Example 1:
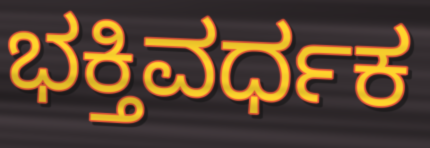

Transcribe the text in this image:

ಭಕ್ತಿವರ್ಧಕ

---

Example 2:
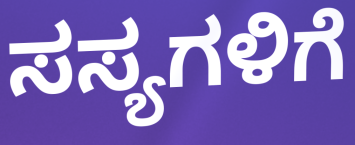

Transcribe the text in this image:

ಸಸ್ಯಗಳಿಗೆ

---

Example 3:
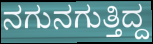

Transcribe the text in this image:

ನಗುನಗುತ್ತಿದ್ದ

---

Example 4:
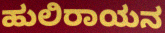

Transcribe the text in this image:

ಹುಲಿರಾಯನ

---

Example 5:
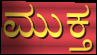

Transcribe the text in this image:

ಮುಕ್ತ